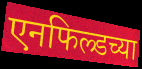
एनफिल्डच्या